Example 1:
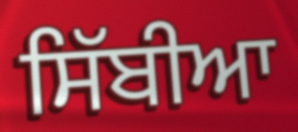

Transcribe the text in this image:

ਸਿੱਬੀਆ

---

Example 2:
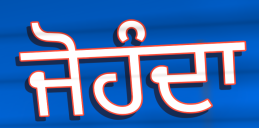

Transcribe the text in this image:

ਜੋਹੰਦਾ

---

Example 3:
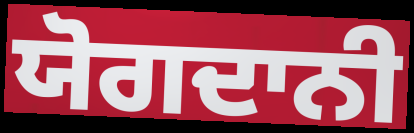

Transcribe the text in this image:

ਯੋਗਦਾਨੀ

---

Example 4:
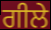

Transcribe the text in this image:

ਗੀਲੇ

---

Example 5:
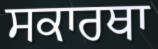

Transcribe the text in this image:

ਸਕਾਰਥਾ